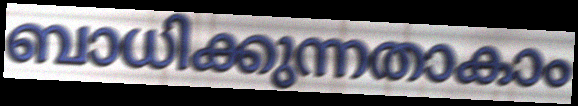
ബാധിക്കുന്നതാകാം